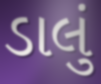
ડાલું